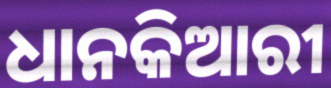
ଧାନକିଆରୀ